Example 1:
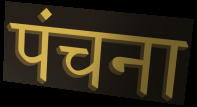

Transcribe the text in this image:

पंचना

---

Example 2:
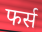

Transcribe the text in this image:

फर्स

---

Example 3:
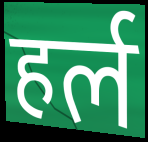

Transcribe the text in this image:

हर्ल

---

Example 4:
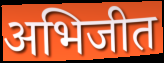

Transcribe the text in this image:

अभिजीत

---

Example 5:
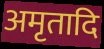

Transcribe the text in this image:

अमृतादि